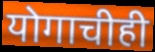
योगाचीही